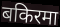
बकिरमा